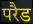
परैड